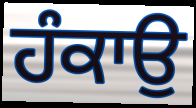
ਹੰਕਾਉ